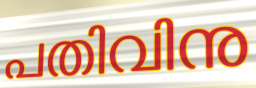
പതിവിനു